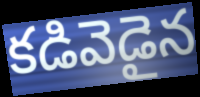
కడివెడైన